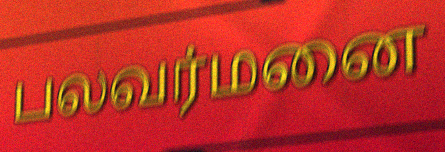
பலவர்மனை